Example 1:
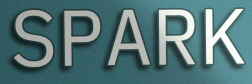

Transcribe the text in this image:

SPARK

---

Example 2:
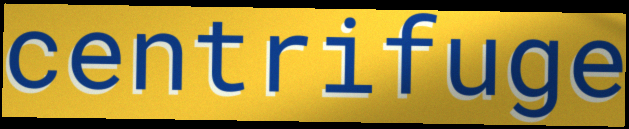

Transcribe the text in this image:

centrifuge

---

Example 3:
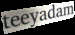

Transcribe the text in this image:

teeyadam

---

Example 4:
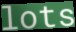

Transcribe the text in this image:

lots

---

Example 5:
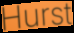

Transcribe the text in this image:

Hurst